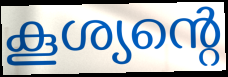
കൂശ്യന്റെ